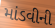
માંડવીની